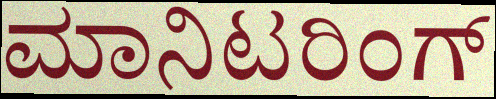
ಮಾನಿಟರಿಂಗ್